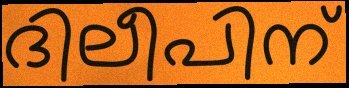
ദിലീപിന്